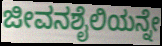
ಜೀವನಶೈಲಿಯನ್ನೇ